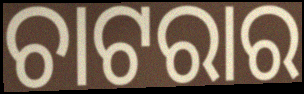
ଚାଟରାର